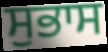
ਸੁਭਾਸ